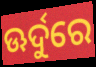
ଊର୍ଦୁରେ